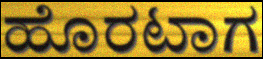
ಹೊರಟಾಗ